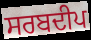
ਸਰਬਦੀਪ